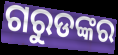
ଗରୁଡଙ୍କର